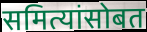
समित्यांसोबत